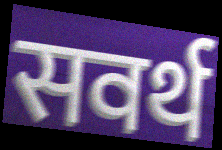
सवर्थ